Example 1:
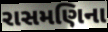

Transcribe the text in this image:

રાસમણિના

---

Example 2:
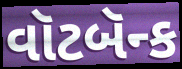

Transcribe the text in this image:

વૉટબૅન્ક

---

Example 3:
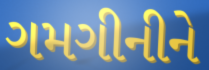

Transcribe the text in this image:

ગમગીનીને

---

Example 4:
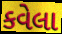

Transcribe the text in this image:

કવેલા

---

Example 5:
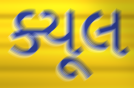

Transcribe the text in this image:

ક્યૂલ